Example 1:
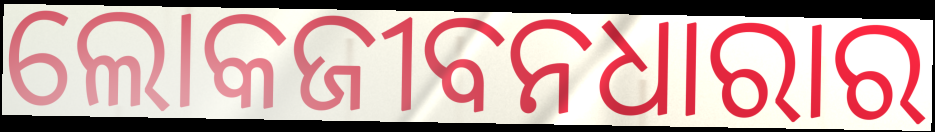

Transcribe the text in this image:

ଲୋକଜୀବନଧାରାର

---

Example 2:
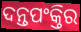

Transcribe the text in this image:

ଦନ୍ତପଂକ୍ତିର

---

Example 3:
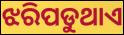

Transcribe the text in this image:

ଝରିପଡୁଥାଏ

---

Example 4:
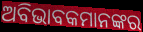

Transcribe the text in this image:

ଅବିଭାବକମାନଙ୍କର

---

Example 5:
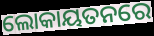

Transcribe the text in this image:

ଲୋକାୟତନରେ